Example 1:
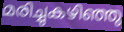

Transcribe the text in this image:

മരിച്ചുകഴിഞ്ഞു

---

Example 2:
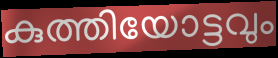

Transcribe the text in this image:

കുത്തിയോട്ടവും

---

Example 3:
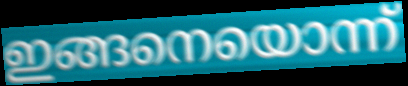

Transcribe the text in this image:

ഇങ്ങനെയൊന്ന്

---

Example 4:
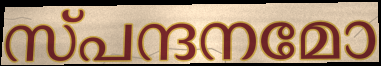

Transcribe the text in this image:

സ്പന്ദനമോ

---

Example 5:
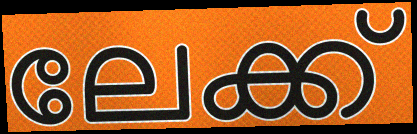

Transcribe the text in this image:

ലേക്ക്